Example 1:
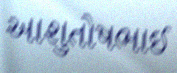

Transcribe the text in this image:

આશુતોષભાઈ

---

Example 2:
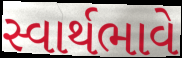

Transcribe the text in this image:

સ્વાર્થભાવે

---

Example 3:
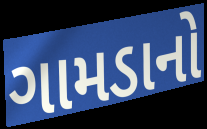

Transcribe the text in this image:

ગામડાનો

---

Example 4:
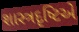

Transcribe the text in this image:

શાસ્ત્રદૃષ્ટિએ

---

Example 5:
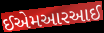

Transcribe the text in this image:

ઈએમઆરઆઈ